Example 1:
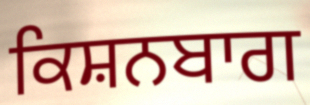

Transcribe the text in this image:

ਕਿਸ਼ਨਬਾਗ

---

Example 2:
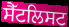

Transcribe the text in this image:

ਸੈੱਟਲਿਸਟ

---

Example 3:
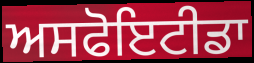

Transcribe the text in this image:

ਅਸਫੋਇਟੀਡਾ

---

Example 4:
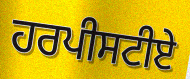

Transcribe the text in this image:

ਹਰਪੀਸਟੀਏ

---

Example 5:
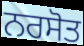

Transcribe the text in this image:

ਨਰਸੋਤ